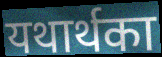
यथार्थका